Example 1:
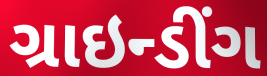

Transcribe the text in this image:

ગ્રાઇન્ડીંગ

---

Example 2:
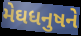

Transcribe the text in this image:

મેઘધનુષને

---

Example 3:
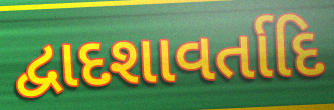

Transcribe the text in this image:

દ્વાદશાવર્તાદિ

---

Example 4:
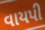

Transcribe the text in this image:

વાયપી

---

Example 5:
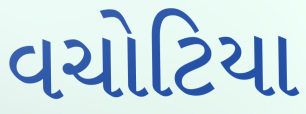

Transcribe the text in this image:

વચોટિયા